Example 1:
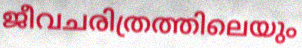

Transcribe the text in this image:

ജീവചരിത്രത്തിലെയും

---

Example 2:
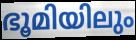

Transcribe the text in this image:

ഭൂമിയിലും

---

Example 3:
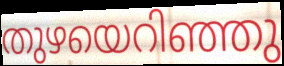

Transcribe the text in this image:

തുഴയെറിഞ്ഞു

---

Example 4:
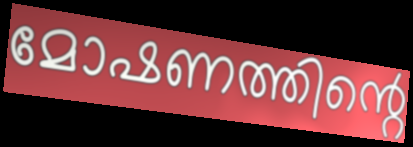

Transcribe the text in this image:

മോഷണത്തിന്റെ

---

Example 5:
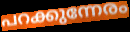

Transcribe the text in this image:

പറക്കുന്നേരം